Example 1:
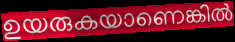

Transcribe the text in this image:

ഉയരുകയാണെങ്കിൽ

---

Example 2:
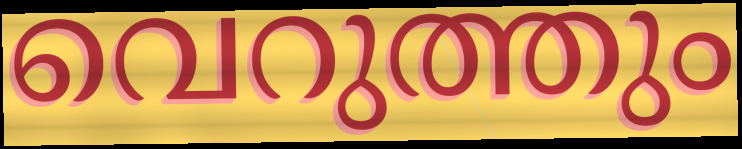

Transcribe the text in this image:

വെറുത്തും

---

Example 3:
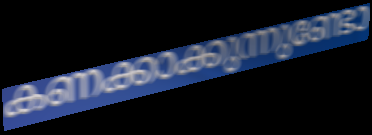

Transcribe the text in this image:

കണക്കാക്കുന്നുണ്ടോ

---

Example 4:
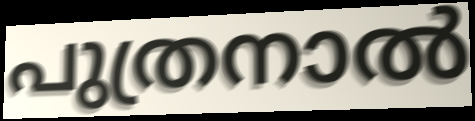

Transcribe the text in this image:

പുത്രനാൽ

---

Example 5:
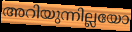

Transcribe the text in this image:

അറിയുന്നില്ലയോ